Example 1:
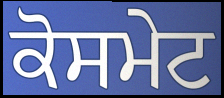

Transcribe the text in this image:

ਕੋਸਮੇਟ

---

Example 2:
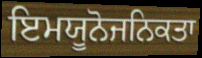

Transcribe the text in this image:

ਇਮਯੂਨੋਜਨਿਕਤਾ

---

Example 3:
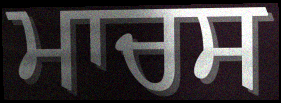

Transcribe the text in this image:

ਮਾਚਸ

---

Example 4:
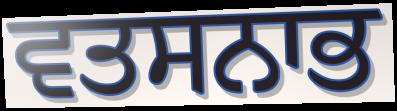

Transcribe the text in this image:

ਵਤਸਨਾਭ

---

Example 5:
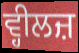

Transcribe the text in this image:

ਵ੍ਹੀਲਜ਼